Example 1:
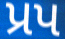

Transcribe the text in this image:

પ્રપ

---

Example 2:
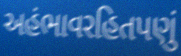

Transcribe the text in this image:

અહંભાવરહિતપણું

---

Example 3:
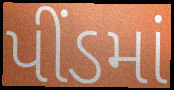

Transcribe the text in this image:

પીંડમાં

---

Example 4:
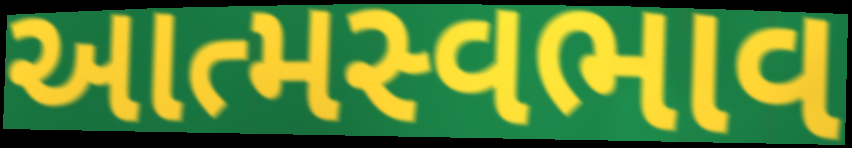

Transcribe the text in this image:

આત્મસ્વભાવ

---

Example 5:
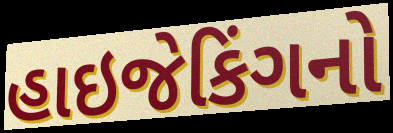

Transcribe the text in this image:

હાઇજેકિંગનો